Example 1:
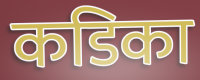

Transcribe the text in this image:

कडिका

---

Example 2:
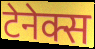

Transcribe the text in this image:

टेनेक्स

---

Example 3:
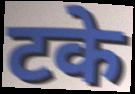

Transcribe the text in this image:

टके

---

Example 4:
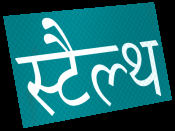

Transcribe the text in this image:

स्टैल्थ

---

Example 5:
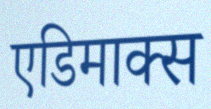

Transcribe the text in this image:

एडिमाक्स